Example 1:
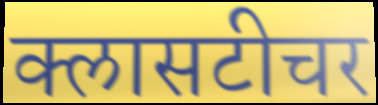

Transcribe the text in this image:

क्लासटीचर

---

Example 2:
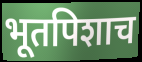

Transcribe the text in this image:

भूतपिशाच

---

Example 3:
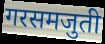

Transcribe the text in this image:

गरसमजुती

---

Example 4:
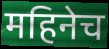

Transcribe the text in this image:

महिनेच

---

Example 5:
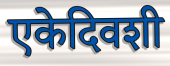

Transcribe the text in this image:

एकेदिवशी